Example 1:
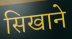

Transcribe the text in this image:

सिखाने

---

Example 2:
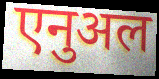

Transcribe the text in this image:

एनुअल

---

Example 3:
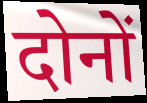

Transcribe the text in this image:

दोनों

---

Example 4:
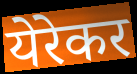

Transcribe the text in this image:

येरेकर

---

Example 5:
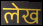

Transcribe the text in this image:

लेख